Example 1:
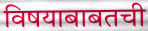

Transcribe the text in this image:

विषयाबाबतची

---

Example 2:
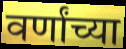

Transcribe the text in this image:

वर्णांच्या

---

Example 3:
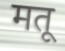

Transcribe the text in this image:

मतू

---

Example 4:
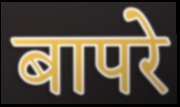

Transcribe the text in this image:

बापरे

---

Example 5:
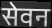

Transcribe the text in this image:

सेवन